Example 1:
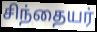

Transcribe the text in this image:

சிந்தையர்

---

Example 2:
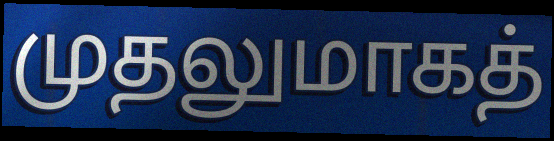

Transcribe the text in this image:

முதலுமாகத்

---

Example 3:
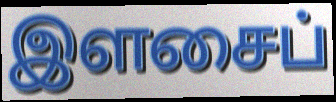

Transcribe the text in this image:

இளசைப்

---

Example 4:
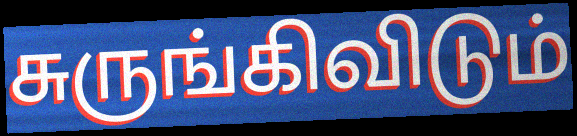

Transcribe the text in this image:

சுருங்கிவிடும்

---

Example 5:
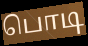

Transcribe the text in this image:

பொடி